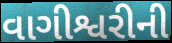
વાગીશ્વરીની